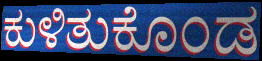
ಕುಳಿತುಕೊಂಡ